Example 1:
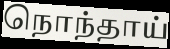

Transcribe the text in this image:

நொந்தாய்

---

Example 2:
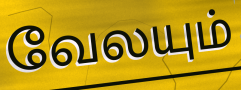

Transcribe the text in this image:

வேலயும்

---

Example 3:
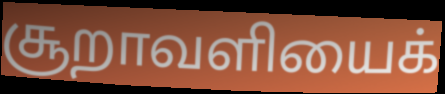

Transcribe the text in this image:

சூறாவளியைக்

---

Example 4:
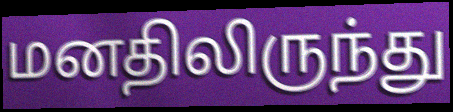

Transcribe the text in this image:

மனதிலிருந்து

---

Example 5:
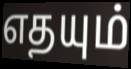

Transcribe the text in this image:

எதயும்